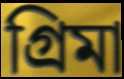
গ্রিমা